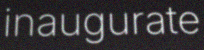
inaugurate